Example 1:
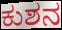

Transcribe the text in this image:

ಕುಶನ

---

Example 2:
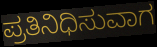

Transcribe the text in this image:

ಪ್ರತಿನಿಧಿಸುವಾಗ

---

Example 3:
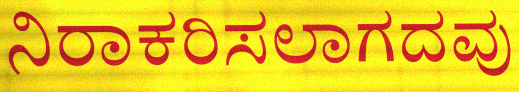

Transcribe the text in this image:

ನಿರಾಕರಿಸಲಾಗದವು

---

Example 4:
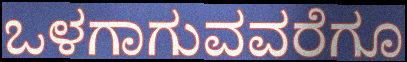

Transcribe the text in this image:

ಒಳಗಾಗುವವರೆಗೂ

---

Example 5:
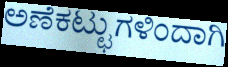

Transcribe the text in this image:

ಅಣೆಕಟ್ಟುಗಳಿಂದಾಗಿ